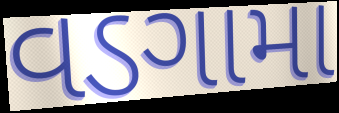
વડગામા